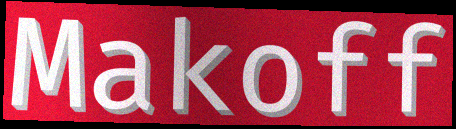
Makoff